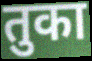
तुका